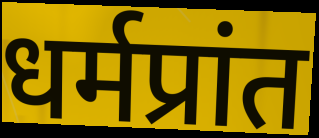
धर्मप्रांत